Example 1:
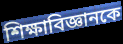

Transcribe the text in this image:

শিক্ষাবিজ্ঞানকে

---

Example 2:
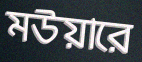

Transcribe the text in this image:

মউয়ারে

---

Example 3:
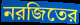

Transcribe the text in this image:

নরজিতের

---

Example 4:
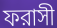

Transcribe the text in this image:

ফরাসী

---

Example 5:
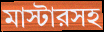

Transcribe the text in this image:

মাস্টারসহ